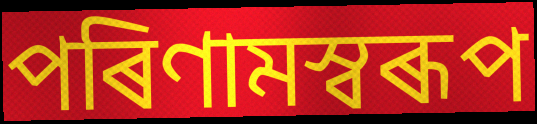
পৰিণামস্বৰূপ